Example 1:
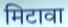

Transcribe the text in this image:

मिटावा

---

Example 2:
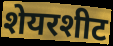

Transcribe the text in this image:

शेयरशीट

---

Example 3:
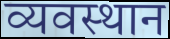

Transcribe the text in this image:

व्यवस्थान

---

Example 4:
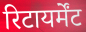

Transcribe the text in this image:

रिटायर्मेंट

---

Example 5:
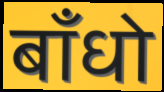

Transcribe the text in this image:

बाँधो